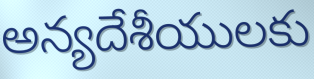
అన్యదేశీయులకు